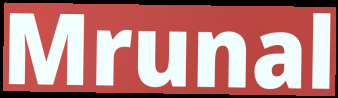
Mrunal